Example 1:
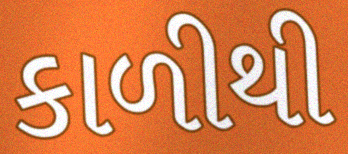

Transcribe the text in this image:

કાળીથી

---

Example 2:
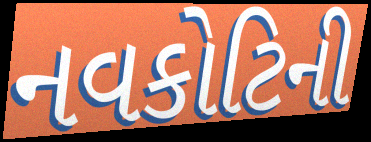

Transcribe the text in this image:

નવકોટિની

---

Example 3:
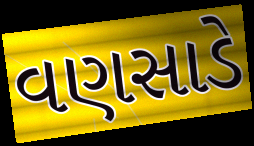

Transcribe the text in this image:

વણસાડે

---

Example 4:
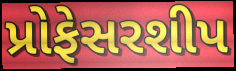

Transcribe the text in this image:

પ્રોફેસરશીપ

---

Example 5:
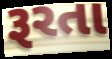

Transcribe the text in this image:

રૂરતા